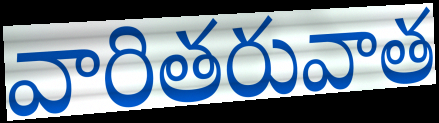
వారితరువాత